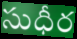
సుధీర